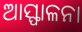
ଆସ୍ଫାଳନା